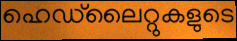
ഹെഡ്‌ലൈറ്റുകളുടെ